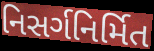
નિસર્ગનિર્મિત